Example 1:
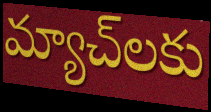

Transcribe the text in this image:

మ్యాచ్‌లకు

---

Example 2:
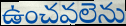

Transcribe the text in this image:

ఉంచవలెను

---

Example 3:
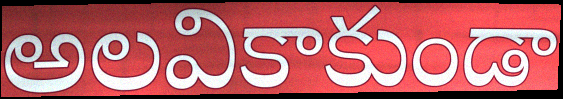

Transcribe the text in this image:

అలవికాకుండా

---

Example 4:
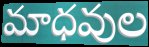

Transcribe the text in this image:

మాధవుల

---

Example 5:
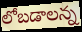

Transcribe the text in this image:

లోబడాలన్న